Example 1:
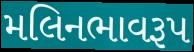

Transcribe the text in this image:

મલિનભાવરૂપ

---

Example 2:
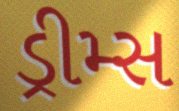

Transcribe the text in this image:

ડ્રીમ્સ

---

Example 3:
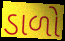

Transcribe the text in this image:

ડાળો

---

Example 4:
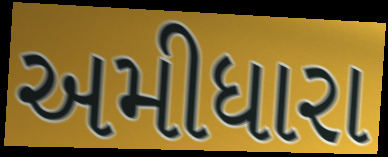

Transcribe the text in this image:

અમીધારા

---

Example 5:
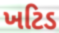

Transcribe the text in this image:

ખટિડ